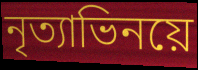
নৃত্যাভিনয়ে